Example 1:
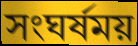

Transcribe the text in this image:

সংঘর্ষময়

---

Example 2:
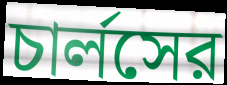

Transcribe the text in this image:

চার্লসের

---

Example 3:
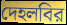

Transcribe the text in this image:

দেহলবির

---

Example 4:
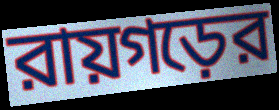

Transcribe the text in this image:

রায়গড়ের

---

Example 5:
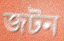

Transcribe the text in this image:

জটন